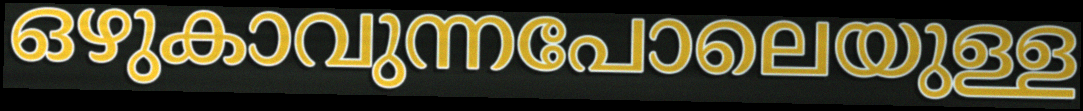
ഒഴുകാവുന്നപോലെയുള്ള